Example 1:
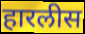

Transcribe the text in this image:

हारलीस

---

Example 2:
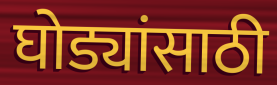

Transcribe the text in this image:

घोड्यांसाठी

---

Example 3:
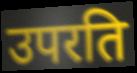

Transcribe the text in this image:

उपरति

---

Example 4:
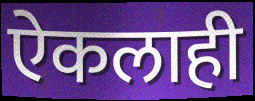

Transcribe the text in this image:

ऐकलाही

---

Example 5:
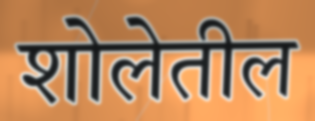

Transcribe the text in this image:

शोलेतील